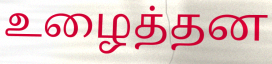
உழைத்தன